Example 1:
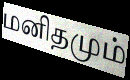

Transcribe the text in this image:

மனிதமும்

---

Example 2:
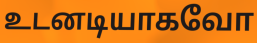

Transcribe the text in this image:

உடனடியாகவோ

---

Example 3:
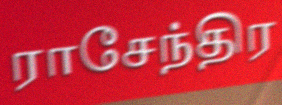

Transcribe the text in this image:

ராசேந்திர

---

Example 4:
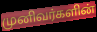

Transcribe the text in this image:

முனிவர்களின்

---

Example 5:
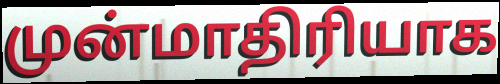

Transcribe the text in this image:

முன்மாதிரியாக